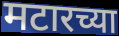
मटारच्या